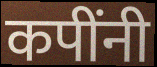
कपींनी